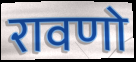
रावणो